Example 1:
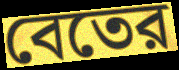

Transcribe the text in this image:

বেতের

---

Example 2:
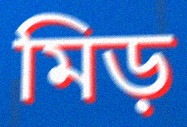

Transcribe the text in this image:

মিড়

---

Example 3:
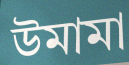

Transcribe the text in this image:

উমামা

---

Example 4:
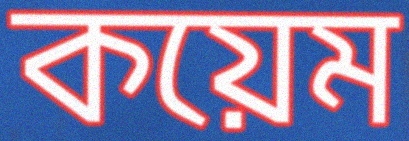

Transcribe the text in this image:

কয়েম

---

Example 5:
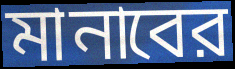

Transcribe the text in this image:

মানাবের